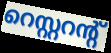
റെസ്റ്ററന്റ്